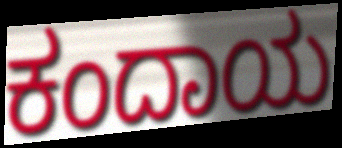
ಕಂದಾಯ